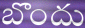
బొందు